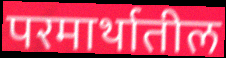
परमार्थातील